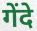
गेंदे